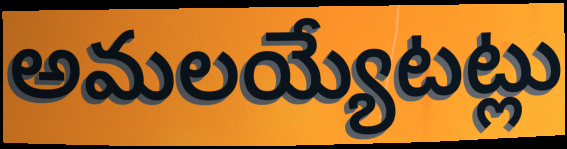
అమలయ్యేటట్లు